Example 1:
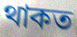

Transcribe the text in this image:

থাকত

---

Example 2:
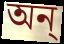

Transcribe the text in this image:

অন্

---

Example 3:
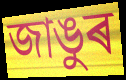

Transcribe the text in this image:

জাঙুৰ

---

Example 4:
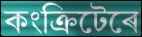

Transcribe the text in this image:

কংক্ৰিটেৰে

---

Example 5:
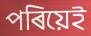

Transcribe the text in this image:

পৰিয়েই